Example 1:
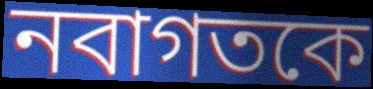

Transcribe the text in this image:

নবাগতকে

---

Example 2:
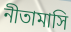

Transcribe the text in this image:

নীতামাসি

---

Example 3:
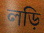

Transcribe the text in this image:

লড়ি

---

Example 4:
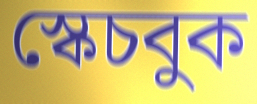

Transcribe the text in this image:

স্কেচবুক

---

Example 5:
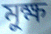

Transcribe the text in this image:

মুক্ষ